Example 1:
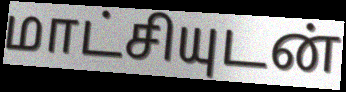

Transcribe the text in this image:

மாட்சியுடன்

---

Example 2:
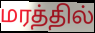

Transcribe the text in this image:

மரத்தில்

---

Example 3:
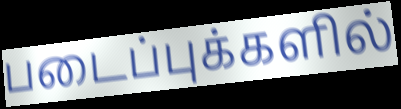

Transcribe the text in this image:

படைப்புக்களில்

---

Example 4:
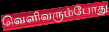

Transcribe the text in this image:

வெளிவரும்போது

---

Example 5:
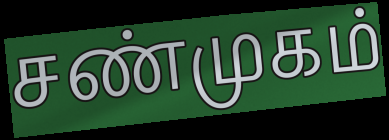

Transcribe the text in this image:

சண்முகம்